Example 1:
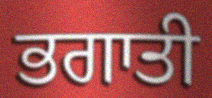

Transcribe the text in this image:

ਭਗਾਤੀ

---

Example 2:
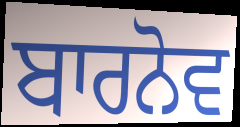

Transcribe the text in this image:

ਬਾਰਨੋਵ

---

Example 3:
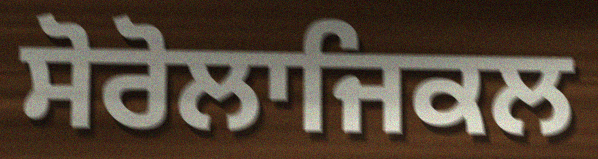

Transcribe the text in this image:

ਸੋਰੋਲਾਜਿਕਲ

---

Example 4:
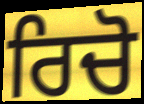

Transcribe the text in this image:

ਰਿਚੋ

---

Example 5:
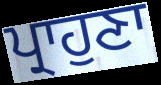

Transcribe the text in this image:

ਪ੍ਰਾਹੁਣਾ